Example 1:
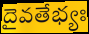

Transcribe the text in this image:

దైవతేభ్యః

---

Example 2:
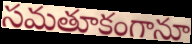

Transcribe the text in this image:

సమతూకంగానూ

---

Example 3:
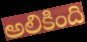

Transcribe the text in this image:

అలికింది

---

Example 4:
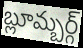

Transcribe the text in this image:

బ్లూమ్బర్గ్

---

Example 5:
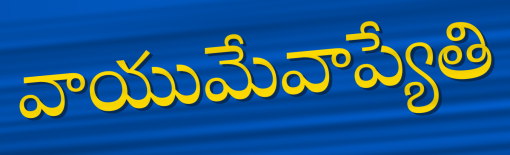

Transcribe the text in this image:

వాయుమేవాప్యేతి